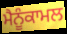
ਮੈਨੂੰਕਾਮਲ